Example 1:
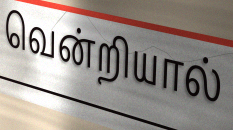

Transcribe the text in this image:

வென்றியால்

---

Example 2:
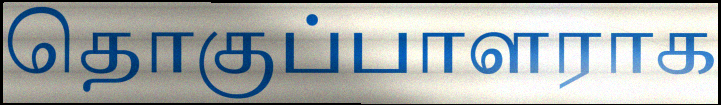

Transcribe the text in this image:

தொகுப்பாளராக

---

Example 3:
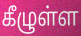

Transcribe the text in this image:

கீழுள்ள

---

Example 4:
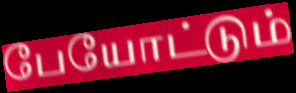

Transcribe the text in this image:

பேயோட்டும்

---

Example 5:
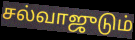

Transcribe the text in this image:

சல்வாஜுடும்